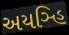
અયઞ્હિ